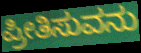
ಪ್ರೀತಿಸುವನು